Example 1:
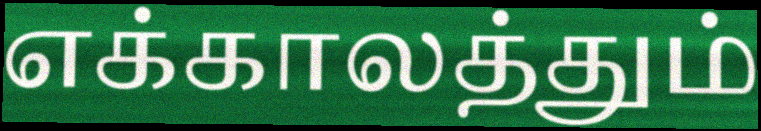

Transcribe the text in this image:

எக்காலத்தும்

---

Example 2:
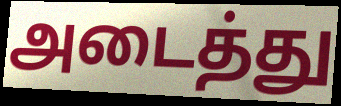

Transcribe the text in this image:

அடைத்து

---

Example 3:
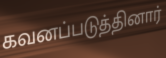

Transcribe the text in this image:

கவனப்படுத்தினார்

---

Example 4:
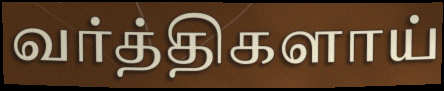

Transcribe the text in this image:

வர்த்திகளாய்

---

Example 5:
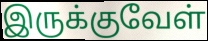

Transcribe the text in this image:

இருக்குவேள்